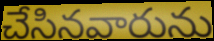
చేసినవారును